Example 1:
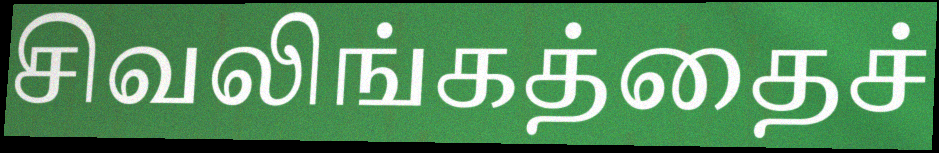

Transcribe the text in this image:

சிவலிங்கத்தைச்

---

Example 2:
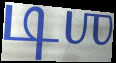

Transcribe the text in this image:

டிஶ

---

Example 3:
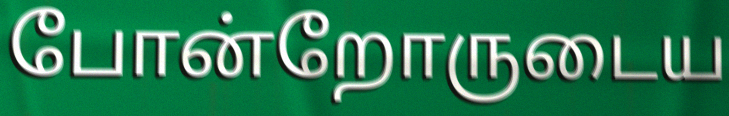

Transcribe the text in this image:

போன்றோருடைய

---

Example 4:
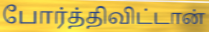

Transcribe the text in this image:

போர்த்திவிட்டான்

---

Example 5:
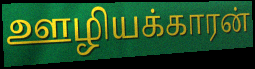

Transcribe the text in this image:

ஊழியக்காரன்